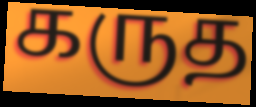
கருத